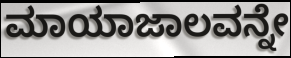
ಮಾಯಾಜಾಲವನ್ನೇ